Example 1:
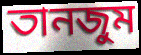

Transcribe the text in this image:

তানজুম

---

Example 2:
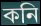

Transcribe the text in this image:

কনি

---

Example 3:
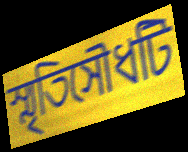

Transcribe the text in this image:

স্মৃতিসৌধটি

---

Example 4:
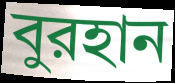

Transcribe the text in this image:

বুরহান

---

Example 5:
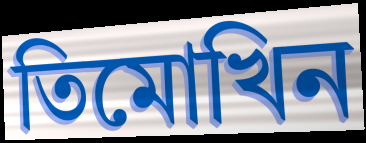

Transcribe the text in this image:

তিমোখিন